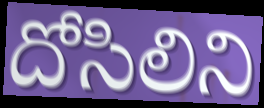
దోసిలిని